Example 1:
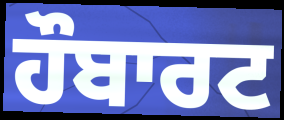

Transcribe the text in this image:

ਹੌਬਾਰਟ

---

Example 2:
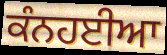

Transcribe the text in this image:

ਕੰਨਹਈਆ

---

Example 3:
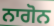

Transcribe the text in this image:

ਨਾਗੋਨ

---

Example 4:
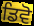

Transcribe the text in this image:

ਡਿਵੋ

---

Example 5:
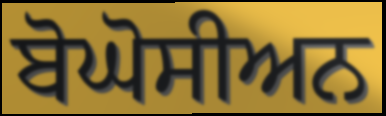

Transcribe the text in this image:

ਬੋਘੋਸੀਅਨ